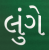
લુંગે